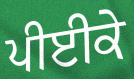
ਪੀਈਕੇ